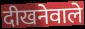
दीखनेवाले